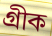
গ্রীক